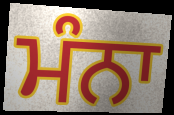
ਮੰਨਾ